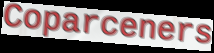
Coparceners